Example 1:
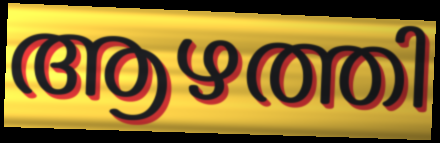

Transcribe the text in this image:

ആഴത്തി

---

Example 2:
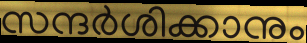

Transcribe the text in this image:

സന്ദർശിക്കാനും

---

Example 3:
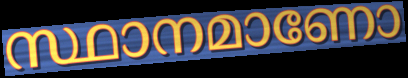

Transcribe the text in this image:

സ്ഥാനമാണോ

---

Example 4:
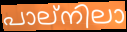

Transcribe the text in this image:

പാല്നിലാ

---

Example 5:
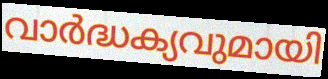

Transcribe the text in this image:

വാർദ്ധക്യവുമായി